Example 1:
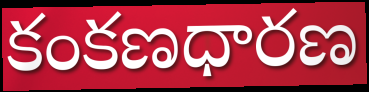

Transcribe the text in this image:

కంకణధారణ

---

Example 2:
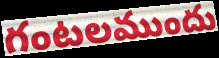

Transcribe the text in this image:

గంటలముందు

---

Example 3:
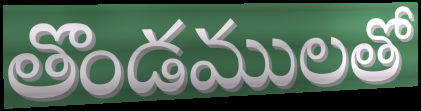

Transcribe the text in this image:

తొండములతో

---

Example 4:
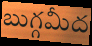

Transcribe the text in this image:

బుగ్గమీద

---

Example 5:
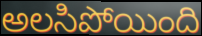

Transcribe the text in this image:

అలసిపోయింది